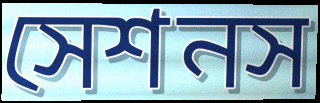
সেশনস